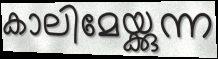
കാലിമേയ്ക്കുന്ന